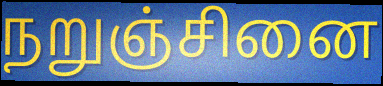
நறுஞ்சினை